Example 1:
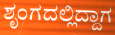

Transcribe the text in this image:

ಶೃಂಗದಲ್ಲಿದ್ದಾಗ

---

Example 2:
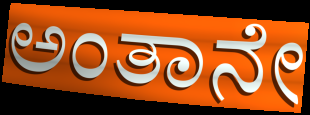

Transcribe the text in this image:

ಅಂತಾನೇ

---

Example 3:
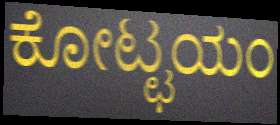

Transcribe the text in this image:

ಕೋಟ್ಟಯಂ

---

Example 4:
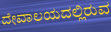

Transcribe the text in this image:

ದೇವಾಲಯದಲ್ಲಿರುವ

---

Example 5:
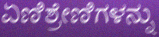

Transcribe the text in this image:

ಏಣಿಶ್ರೇಣಿಗಳನ್ನು